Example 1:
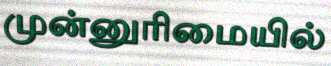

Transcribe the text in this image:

முன்னுரிமையில்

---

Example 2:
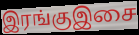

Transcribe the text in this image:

இரங்குஇசை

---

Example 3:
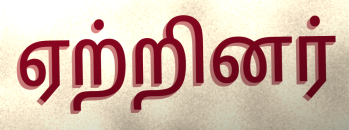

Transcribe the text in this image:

ஏற்றினர்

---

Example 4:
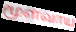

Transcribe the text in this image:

மூள்வாய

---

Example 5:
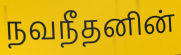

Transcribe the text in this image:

நவநீதனின்